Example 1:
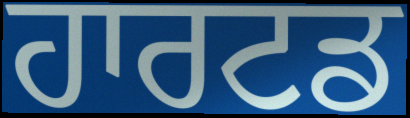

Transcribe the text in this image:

ਹਾਰਟਡ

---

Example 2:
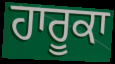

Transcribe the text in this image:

ਹਾਰੂਕਾ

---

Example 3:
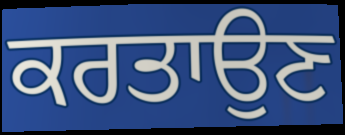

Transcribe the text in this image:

ਕਰਤਾਉਣ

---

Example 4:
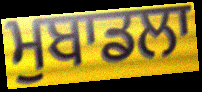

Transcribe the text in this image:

ਮੁਬਾਡਲਾ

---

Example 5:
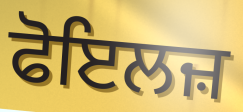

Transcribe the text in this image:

ਫੋਇਲਜ਼